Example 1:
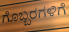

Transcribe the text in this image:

ಗೊಬ್ಬರಗಳಿಗೆ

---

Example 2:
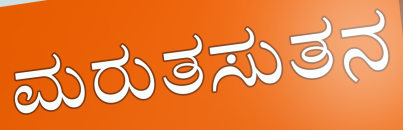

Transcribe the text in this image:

ಮರುತಸುತನ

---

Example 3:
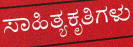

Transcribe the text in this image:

ಸಾಹಿತ್ಯಕೃತಿಗಳು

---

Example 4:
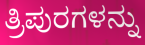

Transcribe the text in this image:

ತ್ರಿಪುರಗಳನ್ನು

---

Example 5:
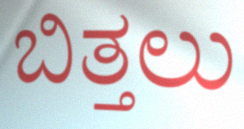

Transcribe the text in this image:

ಬಿತ್ತಲು